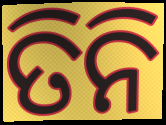
ତିନି